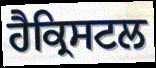
ਹੈਕ੍ਰਿਸਟਲ